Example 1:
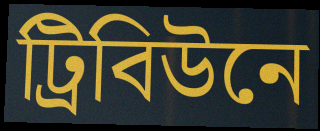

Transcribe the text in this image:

ট্রিবিউনে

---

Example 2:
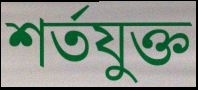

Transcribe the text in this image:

শর্তযুক্ত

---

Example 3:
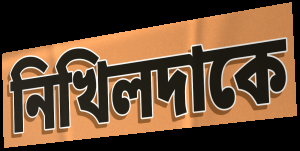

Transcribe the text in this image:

নিখিলদাকে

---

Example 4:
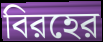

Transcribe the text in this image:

বিরহের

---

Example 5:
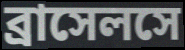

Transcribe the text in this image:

ব্রাসেলসে